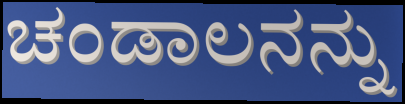
ಚಂಡಾಲನನ್ನು